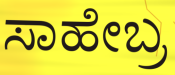
ಸಾಹೇಬ್ರ